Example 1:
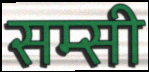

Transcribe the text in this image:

सम्सी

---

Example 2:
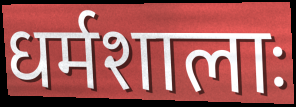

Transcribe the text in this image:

धर्मशालाः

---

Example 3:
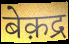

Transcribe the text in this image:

बेक़द्र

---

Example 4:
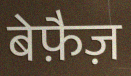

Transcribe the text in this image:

बेफ़ैज़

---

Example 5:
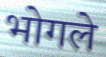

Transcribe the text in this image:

भोगले